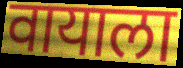
वायाला